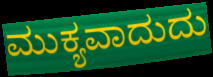
ಮುಕ್ಯವಾದುದು